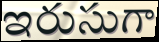
ఇరుసుగా